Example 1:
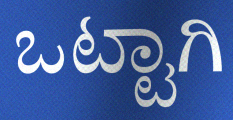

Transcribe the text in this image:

ಒಟ್ಟಾಗಿ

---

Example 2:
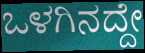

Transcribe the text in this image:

ಒಳಗಿನದ್ದೇ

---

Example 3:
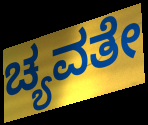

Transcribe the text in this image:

ಚ್ಯವತೇ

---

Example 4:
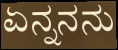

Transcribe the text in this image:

ಏನ್ನನನು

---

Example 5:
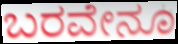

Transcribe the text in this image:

ಬರವೇನೂ